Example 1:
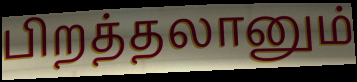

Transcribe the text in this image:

பிறத்தலானும்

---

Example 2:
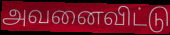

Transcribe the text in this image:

அவனைவிட்டு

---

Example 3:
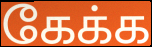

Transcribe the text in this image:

கேக்க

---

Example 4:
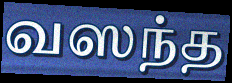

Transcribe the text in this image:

வஸந்த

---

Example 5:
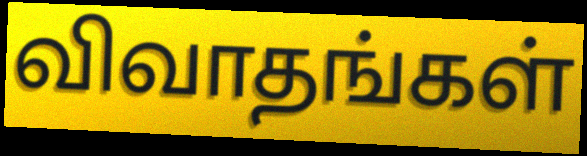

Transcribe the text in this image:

விவாதங்கள்